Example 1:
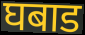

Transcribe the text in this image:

घबाड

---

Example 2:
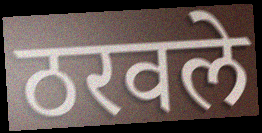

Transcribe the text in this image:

ठरवले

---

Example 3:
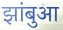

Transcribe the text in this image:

झांबुआ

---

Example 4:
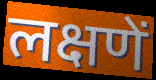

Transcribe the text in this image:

लक्षणें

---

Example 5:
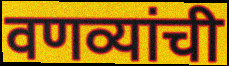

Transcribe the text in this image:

वणव्यांची